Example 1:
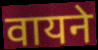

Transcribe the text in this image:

वायने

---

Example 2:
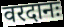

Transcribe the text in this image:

वरदानः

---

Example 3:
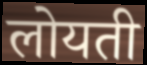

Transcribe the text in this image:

लोयती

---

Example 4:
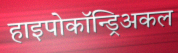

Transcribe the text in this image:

हाइपोकॉन्ड्रिअकल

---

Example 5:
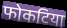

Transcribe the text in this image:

फोकटिया